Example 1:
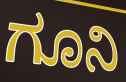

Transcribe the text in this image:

ಗೂನಿ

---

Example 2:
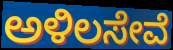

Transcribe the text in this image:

ಅಳಿಲಸೇವೆ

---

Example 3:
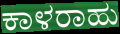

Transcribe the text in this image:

ಕಾಳರಾಹು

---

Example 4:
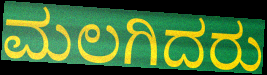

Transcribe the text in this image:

ಮಲಗಿದರು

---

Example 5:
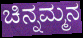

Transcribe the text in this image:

ಚಿನ್ನಮ್ಮನ